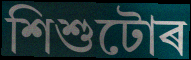
শিশুটোৰ